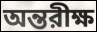
অন্তরীক্ষ